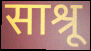
साश्रू